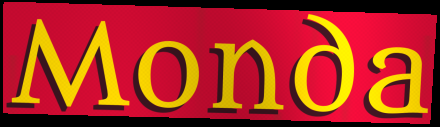
Monda